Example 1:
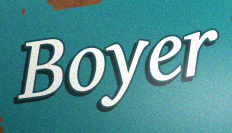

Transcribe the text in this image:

Boyer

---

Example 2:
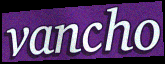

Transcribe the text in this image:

vancho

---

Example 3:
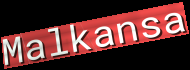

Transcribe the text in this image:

Malkansa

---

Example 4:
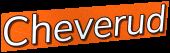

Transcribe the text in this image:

Cheverud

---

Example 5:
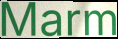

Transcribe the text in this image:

Marm